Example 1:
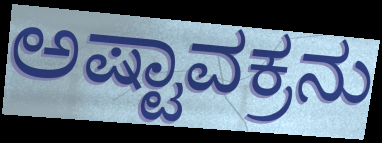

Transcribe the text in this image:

ಅಷ್ಟಾವಕ್ರನು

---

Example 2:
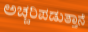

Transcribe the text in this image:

ಅಚ್ಚರಿಪಡುತ್ತಾನೆ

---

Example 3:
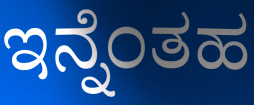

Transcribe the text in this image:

ಇನ್ನೆಂತಹ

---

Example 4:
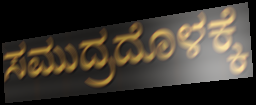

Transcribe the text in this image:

ಸಮುದ್ರದೊಳಕ್ಕೆ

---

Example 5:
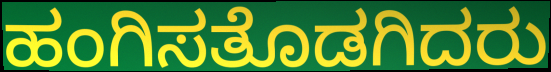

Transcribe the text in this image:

ಹಂಗಿಸತೊಡಗಿದರು